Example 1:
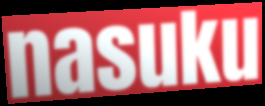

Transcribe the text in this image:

nasuku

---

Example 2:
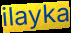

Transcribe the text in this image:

ilayka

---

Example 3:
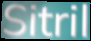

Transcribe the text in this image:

Sitril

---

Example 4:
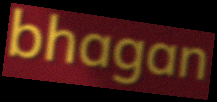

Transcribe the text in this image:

bhagan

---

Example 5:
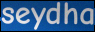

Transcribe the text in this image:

seydha